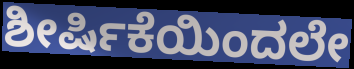
ಶೀರ್ಷಿಕೆಯಿಂದಲೇ